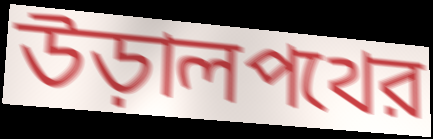
উড়ালপথের